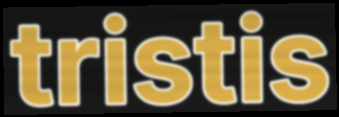
tristis